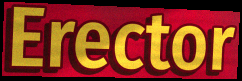
Erector